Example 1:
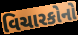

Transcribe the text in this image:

વિચારકોનો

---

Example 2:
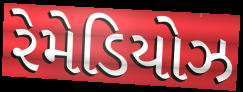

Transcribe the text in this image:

રેમેડિયોઝ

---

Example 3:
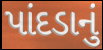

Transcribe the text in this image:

પાંદડાનું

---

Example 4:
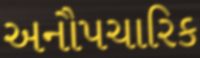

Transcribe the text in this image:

અનૌપચારિક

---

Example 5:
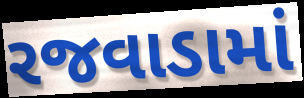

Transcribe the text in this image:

રજવાડામાં